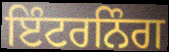
ਇੰਟਰਨਿੰਗ